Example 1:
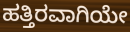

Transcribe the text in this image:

ಹತ್ತಿರವಾಗಿಯೇ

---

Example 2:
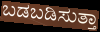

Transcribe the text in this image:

ಬಡಬಡಿಸುತ್ತಾ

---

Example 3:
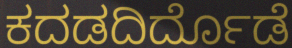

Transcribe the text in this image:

ಕದಡದಿರ್ದೊಡೆ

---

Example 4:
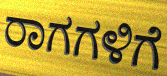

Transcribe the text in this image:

ರಾಗಗಳಿಗೆ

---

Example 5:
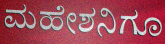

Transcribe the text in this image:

ಮಹೇಶನಿಗೂ